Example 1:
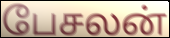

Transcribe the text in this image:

பேசலன்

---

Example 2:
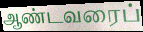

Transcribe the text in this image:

ஆண்டவரைப்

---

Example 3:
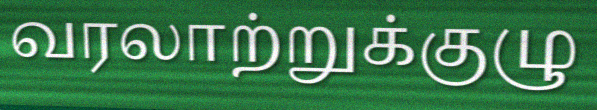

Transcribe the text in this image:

வரலாற்றுக்குழு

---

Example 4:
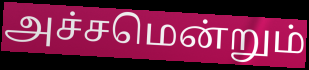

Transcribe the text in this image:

அச்சமென்றும்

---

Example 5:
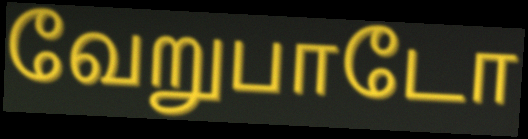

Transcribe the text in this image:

வேறுபாடோ